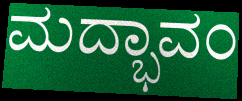
ಮದ್ಭಾವಂ